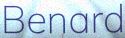
Benard